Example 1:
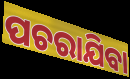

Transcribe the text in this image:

ପଚରାଯିବା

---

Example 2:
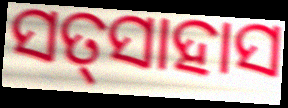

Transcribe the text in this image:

ସତ୍‌ସାହାସ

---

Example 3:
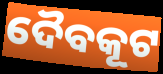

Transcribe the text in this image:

ଦୈବକୂଟ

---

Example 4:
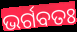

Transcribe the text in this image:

ଭର୍ଗବତଃ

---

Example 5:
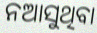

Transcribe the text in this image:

ନଆସୁଥିବା